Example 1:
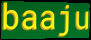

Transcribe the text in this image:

baaju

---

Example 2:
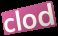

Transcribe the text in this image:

clod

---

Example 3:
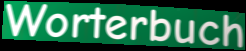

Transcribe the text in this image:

Worterbuch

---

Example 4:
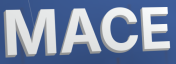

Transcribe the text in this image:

MACE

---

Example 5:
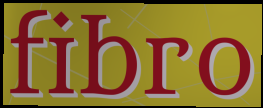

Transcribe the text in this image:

fibro